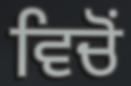
ਵਿਚੋਂ